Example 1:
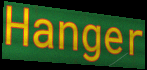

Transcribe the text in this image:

Hanger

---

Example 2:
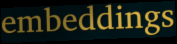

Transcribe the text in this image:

embeddings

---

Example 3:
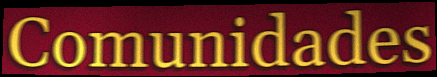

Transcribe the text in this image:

Comunidades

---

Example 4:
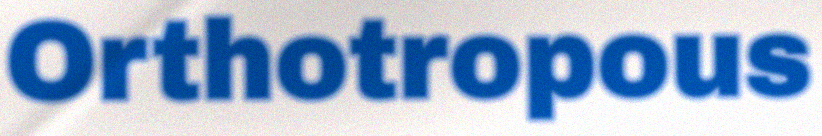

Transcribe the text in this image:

Orthotropous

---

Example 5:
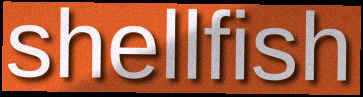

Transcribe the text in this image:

shellfish